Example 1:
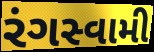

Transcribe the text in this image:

રંગસ્વામી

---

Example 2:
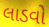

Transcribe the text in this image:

લાડવો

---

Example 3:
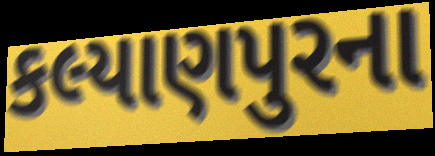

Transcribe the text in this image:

કલ્યાણપુરના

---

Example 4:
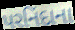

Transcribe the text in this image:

પરનિંદાના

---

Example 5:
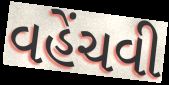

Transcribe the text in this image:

વહેંચવી